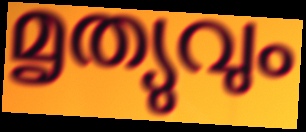
മൃത്യുവും